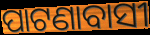
ପାଟଣାବାସୀ